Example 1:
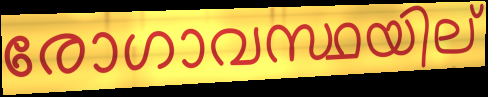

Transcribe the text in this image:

രോഗാവസ്ഥയില്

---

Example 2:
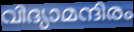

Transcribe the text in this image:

വിദ്യാമന്ദിരം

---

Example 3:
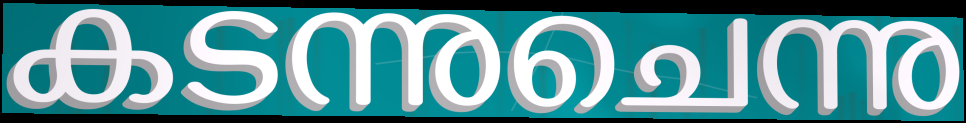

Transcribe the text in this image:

കടന്നുചെന്നു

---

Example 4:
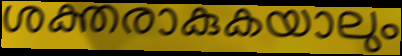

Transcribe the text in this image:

ശക്തരാകുകയാലും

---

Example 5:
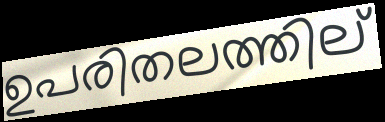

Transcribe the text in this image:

ഉപരിതലത്തില്